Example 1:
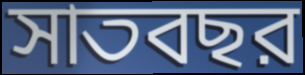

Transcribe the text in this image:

সাতবছর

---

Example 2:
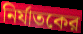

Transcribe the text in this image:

নির্যাতকের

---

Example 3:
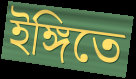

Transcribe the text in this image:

ইঙ্গিতে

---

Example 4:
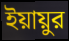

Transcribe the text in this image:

ইয়ায়ুর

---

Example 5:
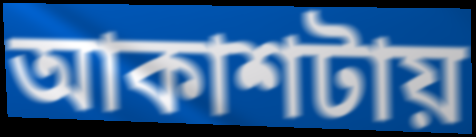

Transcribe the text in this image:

আকাশটায়